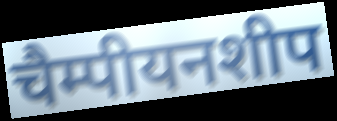
चैम्पीयनशीप